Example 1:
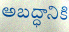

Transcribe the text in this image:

అబద్ధానికి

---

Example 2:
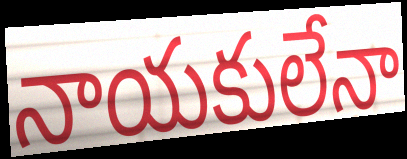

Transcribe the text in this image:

నాయకులేనా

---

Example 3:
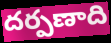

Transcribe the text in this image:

దర్పణాది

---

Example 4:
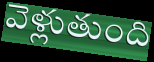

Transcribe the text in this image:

వెళ్లుతుంది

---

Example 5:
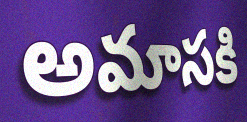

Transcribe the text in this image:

అమాసకి